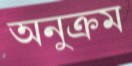
অনুক্রম